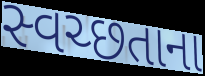
સ્વચ્છતાના